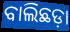
ବାଲିଛଡ଼ା